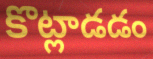
కొట్లాడడం